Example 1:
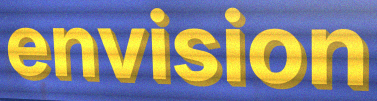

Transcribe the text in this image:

envision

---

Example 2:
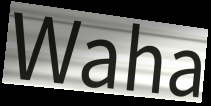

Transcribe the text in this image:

Waha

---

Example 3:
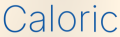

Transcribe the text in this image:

Caloric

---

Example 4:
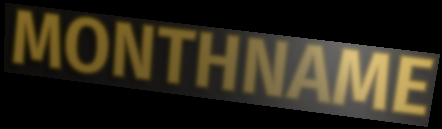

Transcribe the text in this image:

MONTHNAME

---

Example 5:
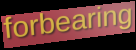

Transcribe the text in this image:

forbearing